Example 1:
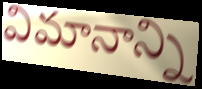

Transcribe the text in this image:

విమానాన్ని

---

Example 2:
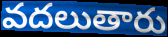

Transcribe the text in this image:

వదలుతారు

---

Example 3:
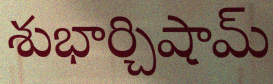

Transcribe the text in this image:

శుభార్చిషామ్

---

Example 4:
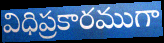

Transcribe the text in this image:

విధిప్రకారముగా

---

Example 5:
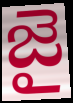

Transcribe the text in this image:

జై